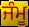
ਜੰਮੂ